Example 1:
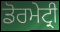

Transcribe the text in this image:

ਡੋਰਮੇਟ੍ਰੀ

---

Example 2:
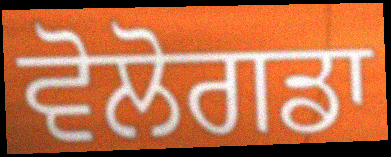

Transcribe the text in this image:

ਵੋਲੋਗਡਾ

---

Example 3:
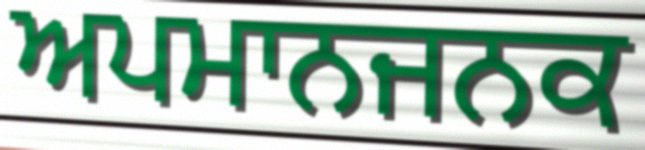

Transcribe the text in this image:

ਅਪਮਾਨਜਨਕ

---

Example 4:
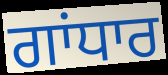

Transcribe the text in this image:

ਗਾਂਧਾਰ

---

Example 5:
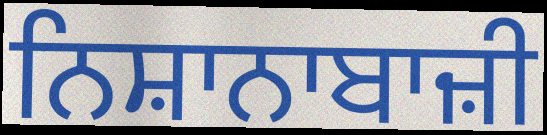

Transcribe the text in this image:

ਨਿਸ਼ਾਨਾਬਾਜ਼ੀ